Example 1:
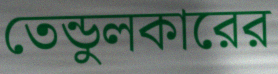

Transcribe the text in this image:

তেন্ডুলকারের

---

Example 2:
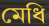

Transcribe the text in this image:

মেধি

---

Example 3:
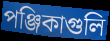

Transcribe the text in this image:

পঞ্জিকাগুলি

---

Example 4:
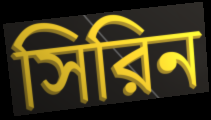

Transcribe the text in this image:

সিরিন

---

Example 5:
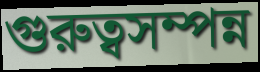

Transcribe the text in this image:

গুরুত্বসম্পন্ন